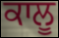
ਕਾਲੂ